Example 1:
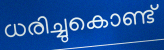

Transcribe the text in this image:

ധരിച്ചുകൊണ്ട്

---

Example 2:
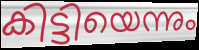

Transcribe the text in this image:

കിട്ടിയെന്നും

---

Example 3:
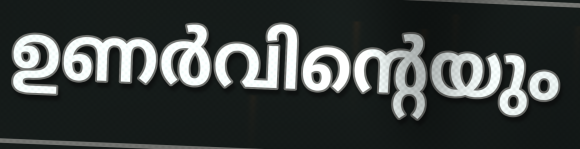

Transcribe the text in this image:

ഉണർവിന്റെയും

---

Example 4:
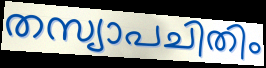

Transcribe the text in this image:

തസ്യാപചിതിം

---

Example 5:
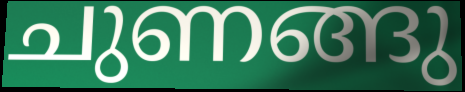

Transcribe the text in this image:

ചുണങ്ങു